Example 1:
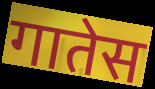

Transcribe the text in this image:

गातेस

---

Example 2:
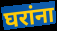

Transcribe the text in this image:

घरांना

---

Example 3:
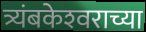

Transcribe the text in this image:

त्र्यंबकेश्‍वराच्या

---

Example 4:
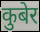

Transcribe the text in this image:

कुबेर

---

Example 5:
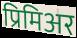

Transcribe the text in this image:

प्रिमिअर